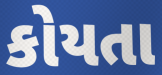
કોયતા